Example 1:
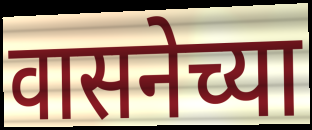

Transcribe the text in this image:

वासनेच्या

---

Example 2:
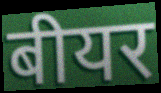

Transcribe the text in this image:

बीयर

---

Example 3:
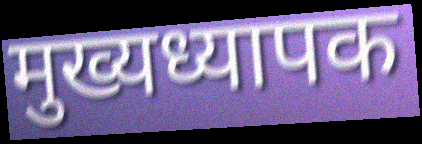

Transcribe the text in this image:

मुख्यध्यापक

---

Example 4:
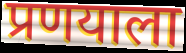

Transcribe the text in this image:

प्रणयाला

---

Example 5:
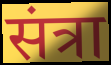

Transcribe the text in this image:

संत्रा